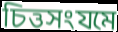
চিত্তসংযমে